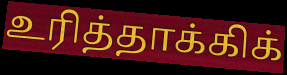
உரித்தாக்கிக்